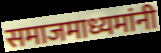
समाजमाध्यमांनी